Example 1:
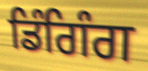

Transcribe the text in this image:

ਡਿੰਗਿੰਗ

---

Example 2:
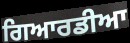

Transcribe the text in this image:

ਗਿਆਰਡੀਆ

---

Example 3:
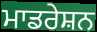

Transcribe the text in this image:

ਮਾਡਰੇਸ਼ਨ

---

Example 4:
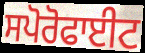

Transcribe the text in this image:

ਸਪੋਰੋਫਾਈਟ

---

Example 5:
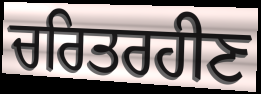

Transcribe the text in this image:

ਚਰਿਤਰਹੀਣ